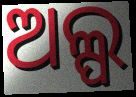
ଅଲ୍ପ